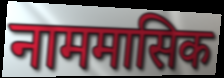
नाममासिक